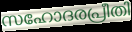
സഹോദരപ്രീതി